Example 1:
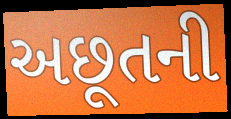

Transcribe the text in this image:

અછૂતની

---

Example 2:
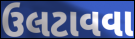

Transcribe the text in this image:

ઉલટાવવા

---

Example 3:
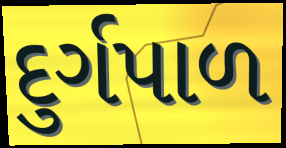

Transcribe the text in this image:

દુર્ગપાળ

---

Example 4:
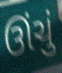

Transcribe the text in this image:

ઊંચું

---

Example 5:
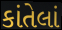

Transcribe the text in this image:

કાંતેલાં